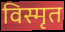
विस्मृत